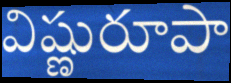
విష్ణురూపా